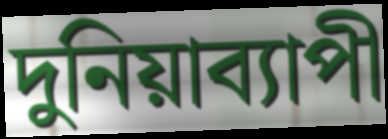
দুনিয়াব্যাপী